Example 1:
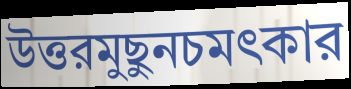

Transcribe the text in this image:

উত্তরমুছুনচমৎকার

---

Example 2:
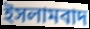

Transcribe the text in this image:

ইসলামবাদ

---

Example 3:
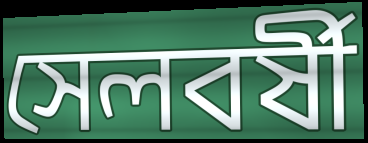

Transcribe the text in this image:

সেলবর্ষী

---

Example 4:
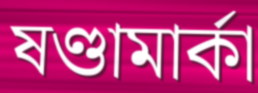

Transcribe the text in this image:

ষণ্ডামার্কা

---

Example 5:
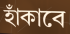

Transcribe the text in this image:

হাঁকাবে